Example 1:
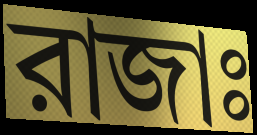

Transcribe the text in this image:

রাজাঃ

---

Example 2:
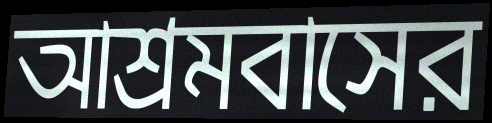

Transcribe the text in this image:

আশ্রমবাসের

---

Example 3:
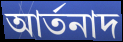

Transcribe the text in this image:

আর্তনাদ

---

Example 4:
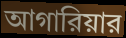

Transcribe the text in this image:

আগারিয়ার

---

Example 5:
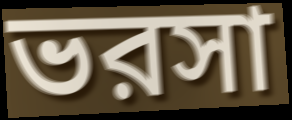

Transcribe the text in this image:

ভরসা